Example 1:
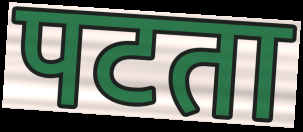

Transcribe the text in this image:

पटता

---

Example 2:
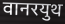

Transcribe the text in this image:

वानरयुथ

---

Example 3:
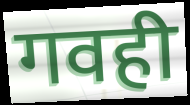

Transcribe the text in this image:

गवही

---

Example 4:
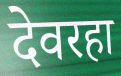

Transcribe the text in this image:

देवरहा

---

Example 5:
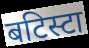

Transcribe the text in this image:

बटिस्टा